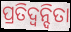
ପ୍ରତିଦ୍ଵନ୍ଦିତା